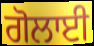
ਗੋਲਾਈ